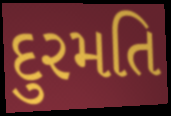
દુરમતિ